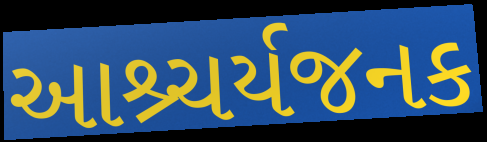
આશ્ર્ચર્યજનક